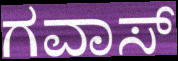
ಗವಾಸ್